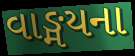
વાઙ્મયના